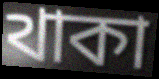
থাকা